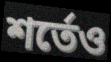
শর্তেও